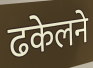
ढकेलने